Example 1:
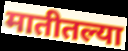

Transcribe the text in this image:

मातीतल्या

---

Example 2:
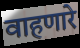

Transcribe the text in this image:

वाहणारे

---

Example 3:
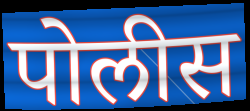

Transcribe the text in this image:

पोलीस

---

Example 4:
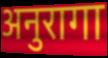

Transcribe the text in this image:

अनुरागा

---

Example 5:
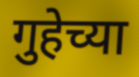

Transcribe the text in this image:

गुहेच्या